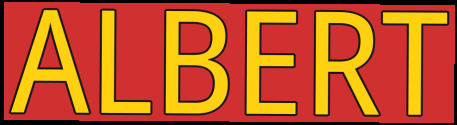
ALBERT